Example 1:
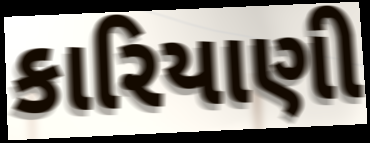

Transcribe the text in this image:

કારિયાણી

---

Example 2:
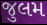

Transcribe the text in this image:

જુલમ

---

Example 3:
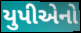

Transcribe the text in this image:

યુપીએનો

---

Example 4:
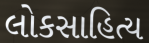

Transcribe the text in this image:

લોકસાહિત્ય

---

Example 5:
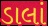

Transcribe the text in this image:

ડાલાં